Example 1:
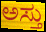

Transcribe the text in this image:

ಅಸ್ತು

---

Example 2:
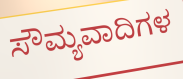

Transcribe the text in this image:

ಸೌಮ್ಯವಾದಿಗಳ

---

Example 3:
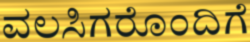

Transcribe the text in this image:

ವಲಸಿಗರೊಂದಿಗೆ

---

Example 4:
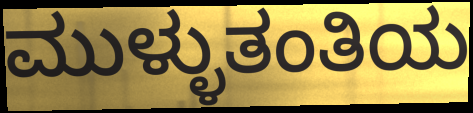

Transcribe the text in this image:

ಮುಳ್ಳುತಂತಿಯ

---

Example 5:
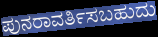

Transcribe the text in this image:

ಪುನರಾವರ್ತಿಸಬಹುದು